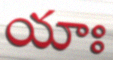
యాః